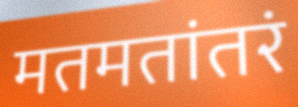
मतमतांतरं